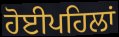
ਹੋਈਪਹਿਲਾਂ